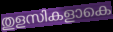
തുളസികളാകെ